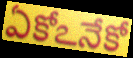
ఏకోఽనేకో